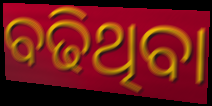
ବଢିଥିବା